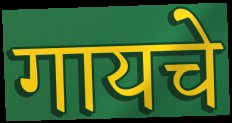
गायचे